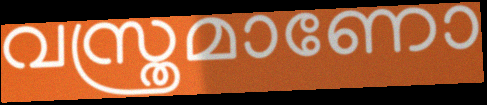
വസ്ത്രമാണോ